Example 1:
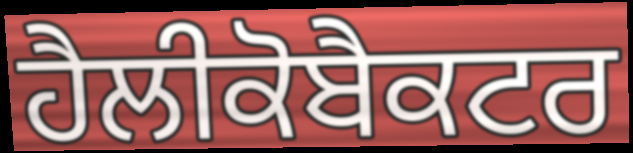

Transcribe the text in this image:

ਹੈਲੀਕੋਬੈਕਟਰ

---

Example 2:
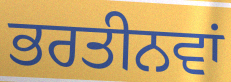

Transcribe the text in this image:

ਭਰਤੀਨਵਾਂ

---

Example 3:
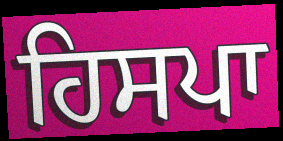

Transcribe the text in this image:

ਹਿਸਪਾ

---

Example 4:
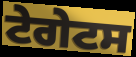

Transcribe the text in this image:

ਟੇਗੇਟਸ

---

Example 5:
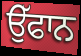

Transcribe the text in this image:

ਉੱਫਾਨ